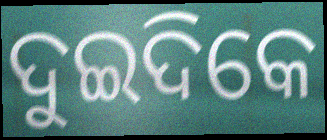
ଦୁଇଦିକେ